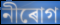
নীৰোগ